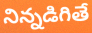
నిన్నడిగితే